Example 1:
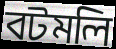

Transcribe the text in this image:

বটমলি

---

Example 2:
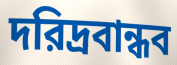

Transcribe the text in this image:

দরিদ্রবান্ধব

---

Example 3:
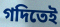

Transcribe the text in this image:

গদিতেই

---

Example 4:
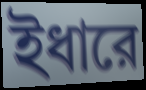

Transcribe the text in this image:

ইধারে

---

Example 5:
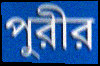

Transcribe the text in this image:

পুরীর